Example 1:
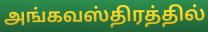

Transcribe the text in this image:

அங்கவஸ்திரத்தில்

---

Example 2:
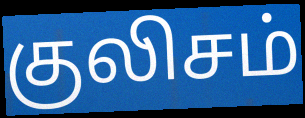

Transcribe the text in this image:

குலிசம்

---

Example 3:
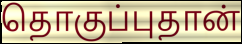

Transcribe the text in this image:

தொகுப்புதான்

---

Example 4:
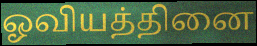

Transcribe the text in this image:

ஓவியத்தினை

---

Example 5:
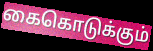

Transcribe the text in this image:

கைகொடுக்கும்